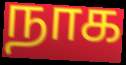
நாக